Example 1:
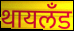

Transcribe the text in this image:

थायलँड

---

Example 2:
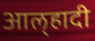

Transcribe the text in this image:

आल्हादी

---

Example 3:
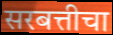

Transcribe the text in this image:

सरबत्तीचा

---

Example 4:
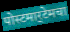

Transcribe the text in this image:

पोस्टमार्टेमचा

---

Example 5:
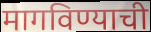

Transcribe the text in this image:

मागविण्याची